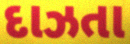
દાઝતા